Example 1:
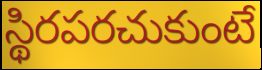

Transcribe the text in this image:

స్థిరపరచుకుంటే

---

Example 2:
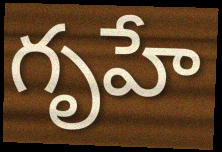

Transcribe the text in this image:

గృహే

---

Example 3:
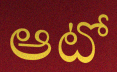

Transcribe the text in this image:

ఆటో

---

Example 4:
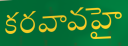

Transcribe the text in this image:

కరవావహై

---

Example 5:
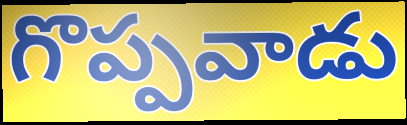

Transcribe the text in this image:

గొప్పవాడు